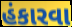
હંકારવા